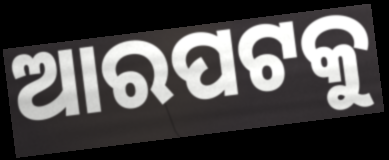
ଆରପଟକୁ